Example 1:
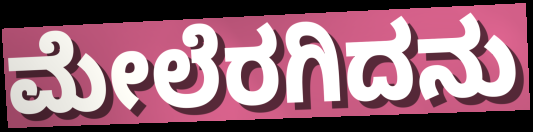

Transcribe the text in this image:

ಮೇಲೆರಗಿದನು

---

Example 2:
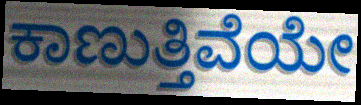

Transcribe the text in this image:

ಕಾಣುತ್ತಿವೆಯೇ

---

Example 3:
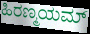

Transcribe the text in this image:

ಹಿರಣ್ಮಯಮ್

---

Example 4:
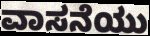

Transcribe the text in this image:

ವಾಸನೆಯು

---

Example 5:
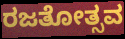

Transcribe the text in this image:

ರಜತೋತ್ಸವ